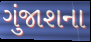
ગુંજાશના